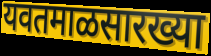
यवतमाळसारख्या